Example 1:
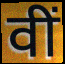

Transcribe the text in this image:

वीं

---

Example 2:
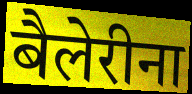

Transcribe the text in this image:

बैलेरीना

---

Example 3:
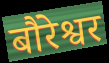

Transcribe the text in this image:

बौरेश्वर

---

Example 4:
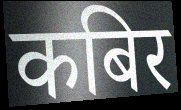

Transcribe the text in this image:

कबिर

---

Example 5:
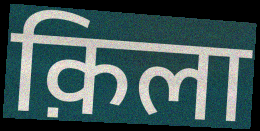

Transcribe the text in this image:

क़िला